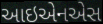
આઇએનએસ